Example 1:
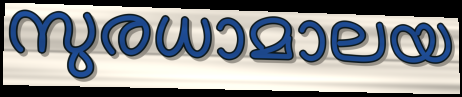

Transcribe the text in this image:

സുരധാമാലയ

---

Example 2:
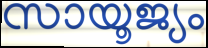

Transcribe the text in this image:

സായൂജ്യം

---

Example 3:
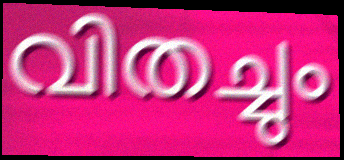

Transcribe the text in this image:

വിതച്ചും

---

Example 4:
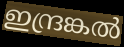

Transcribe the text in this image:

ഇന്ദ്രങ്കൽ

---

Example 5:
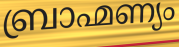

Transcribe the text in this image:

ബ്രാഹ്മണ്യം